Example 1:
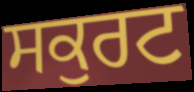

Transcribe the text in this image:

ਸਕੁਰਟ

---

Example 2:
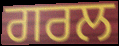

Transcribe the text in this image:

ਗਰਲ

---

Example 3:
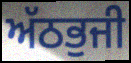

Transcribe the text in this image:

ਅੱਠਭੁਜੀ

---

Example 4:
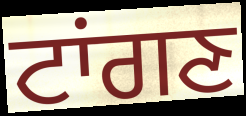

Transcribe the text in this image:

ਟਾਂਗਣ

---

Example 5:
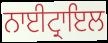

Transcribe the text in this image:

ਨਾਈਟ੍ਰਾਇਲ